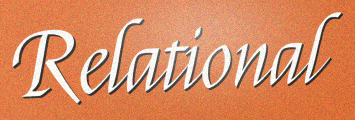
Relational